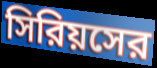
সিরিয়সের